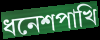
ধনেশপাখি